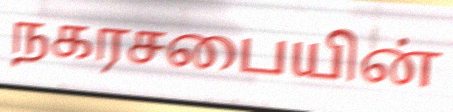
நகரசபையின்